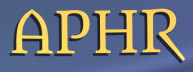
APHR